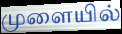
முளையில்